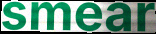
smear